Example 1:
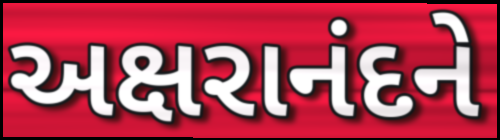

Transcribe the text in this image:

અક્ષરાનંદને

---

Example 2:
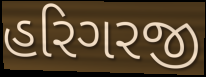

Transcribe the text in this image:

હરિગરજી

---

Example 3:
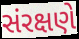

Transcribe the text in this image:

સંરક્ષણે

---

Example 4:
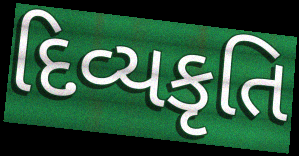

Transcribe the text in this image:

દિવ્યકૃતિ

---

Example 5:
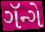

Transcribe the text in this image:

ગૅન્ગે